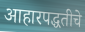
आहारपद्धतीचे